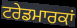
ਟਰੇਡਮਾਰਕਾਂ